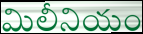
మిలీనియం